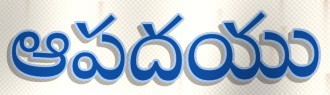
ఆపదయు